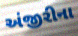
અંજીરીના